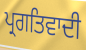
ਪ੍ਰਗਤਿਵਾਦੀ